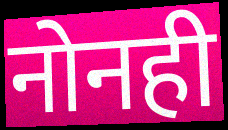
नोनही